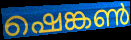
ഷെങ്കൺ